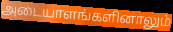
அடையாளங்களினாலும்